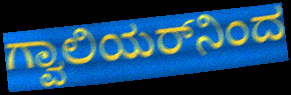
ಗ್ವಾಲಿಯರ್‌ನಿಂದ